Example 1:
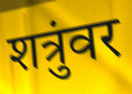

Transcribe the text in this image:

शत्रुंवर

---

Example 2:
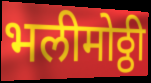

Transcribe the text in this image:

भलीमोठ्ठी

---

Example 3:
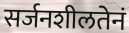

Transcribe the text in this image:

सर्जनशीलतेनं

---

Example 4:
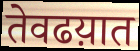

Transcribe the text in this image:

तेवढय़ात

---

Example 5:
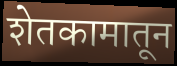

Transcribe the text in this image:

शेतकामातून